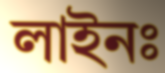
লাইনঃ